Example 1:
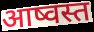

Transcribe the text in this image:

आष्वस्त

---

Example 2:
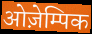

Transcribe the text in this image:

ओज़ेम्पिक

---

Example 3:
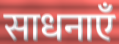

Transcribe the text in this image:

साधनाएँ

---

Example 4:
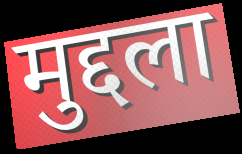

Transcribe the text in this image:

मुद्दला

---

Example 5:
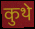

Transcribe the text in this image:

कुथे